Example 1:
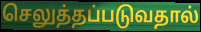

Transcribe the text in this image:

செலுத்தப்படுவதால்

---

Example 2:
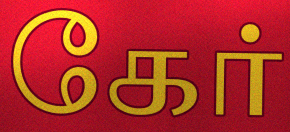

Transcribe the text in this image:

கேர்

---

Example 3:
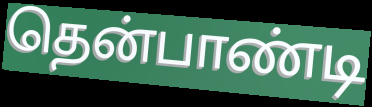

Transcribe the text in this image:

தென்பாண்டி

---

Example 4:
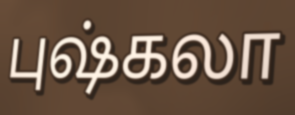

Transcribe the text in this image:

புஷ்கலா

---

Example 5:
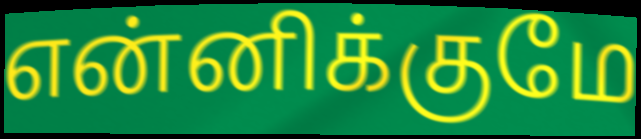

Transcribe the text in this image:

என்னிக்குமே